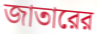
জাতারের